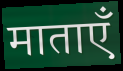
माताएँ